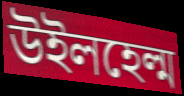
উইলহেল্ম